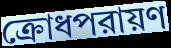
ক্রোধপরায়ণ